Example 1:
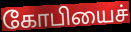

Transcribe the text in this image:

கோபியைச்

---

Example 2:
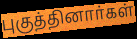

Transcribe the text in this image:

புகுத்தினார்கள்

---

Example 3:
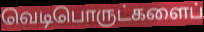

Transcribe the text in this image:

வெடிபொருட்களைப்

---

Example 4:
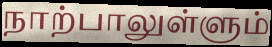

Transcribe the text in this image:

நாற்பாலுள்ளும்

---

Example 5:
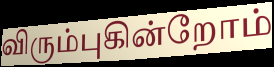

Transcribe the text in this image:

விரும்புகின்றோம்